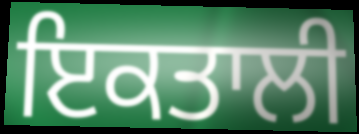
ਇਕਤਾਲੀ